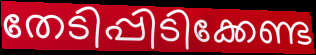
തേടിപ്പിടിക്കേണ്ട